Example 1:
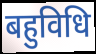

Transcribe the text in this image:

बहुविधि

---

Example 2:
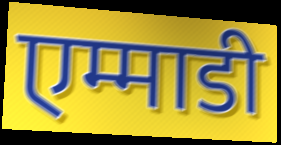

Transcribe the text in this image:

एम्माडी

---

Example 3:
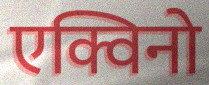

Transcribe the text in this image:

एक्विनो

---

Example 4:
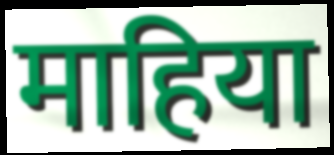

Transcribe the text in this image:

माहिया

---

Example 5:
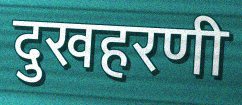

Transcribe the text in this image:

दुखहरणी